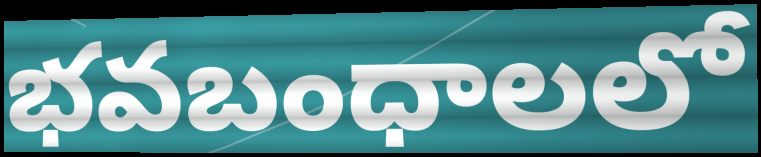
భవబంధాలలో